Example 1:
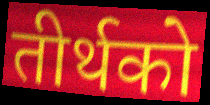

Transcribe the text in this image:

तीर्थको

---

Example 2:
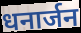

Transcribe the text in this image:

धनार्जन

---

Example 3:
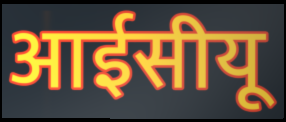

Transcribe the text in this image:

आईसीयू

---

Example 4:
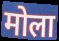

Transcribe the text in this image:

मोला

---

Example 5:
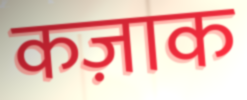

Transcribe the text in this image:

कज़ाक